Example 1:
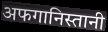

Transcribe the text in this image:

अफगानिस्तानी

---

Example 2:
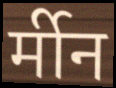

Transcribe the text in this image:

र्मीन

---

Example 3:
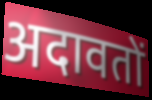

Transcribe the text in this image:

अदावतों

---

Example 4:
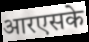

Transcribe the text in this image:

आरएसके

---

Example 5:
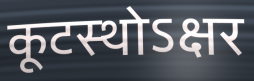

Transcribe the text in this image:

कूटस्थोऽक्षर